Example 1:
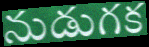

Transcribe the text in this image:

నుడుగక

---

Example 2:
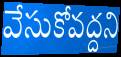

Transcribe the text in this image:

వేసుకోవద్దని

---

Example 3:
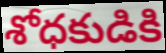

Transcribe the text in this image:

శోధకుడికి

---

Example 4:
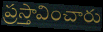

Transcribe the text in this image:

ప్రస్తావించారు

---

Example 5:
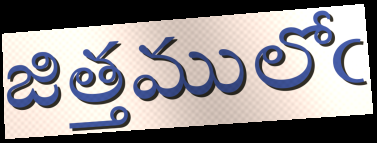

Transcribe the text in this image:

జిత్తములోఁ